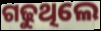
ଗଢୁଥିଲେ